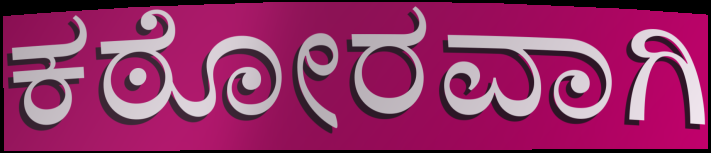
ಕಠೋರವಾಗಿ